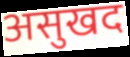
असुखद